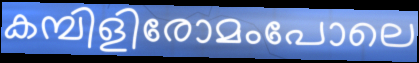
കമ്പിളിരോമംപോലെ